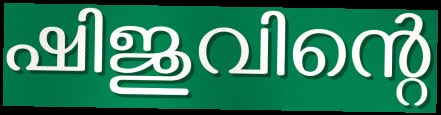
ഷിജുവിന്റെ